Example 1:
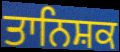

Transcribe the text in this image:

ਤਾਨਿਸ਼ਕ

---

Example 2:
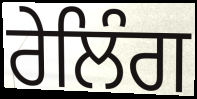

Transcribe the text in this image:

ਰੇਲਿੰਗ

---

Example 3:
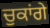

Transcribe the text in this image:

ਚੁਕਾਂਗੇ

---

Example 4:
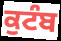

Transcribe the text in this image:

ਕੁਟੰਬ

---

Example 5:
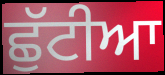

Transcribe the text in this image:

ਛੁੱਟੀਆ